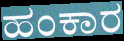
ಹಂಕಾರ